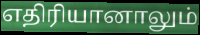
எதிரியானாலும்